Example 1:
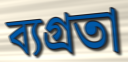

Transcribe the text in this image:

ব্যগ্রতা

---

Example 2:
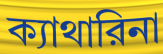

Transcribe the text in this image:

ক্যাথারিনা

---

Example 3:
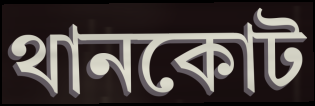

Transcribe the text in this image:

থানকোট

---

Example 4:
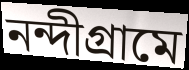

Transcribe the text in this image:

নন্দীগ্রামে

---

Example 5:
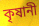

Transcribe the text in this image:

কৃষানী